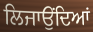
ਲਿਜਾਉਂਦਿਆਂ